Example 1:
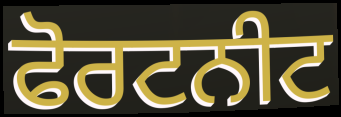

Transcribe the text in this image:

ਫੋਰਟਨੀਟ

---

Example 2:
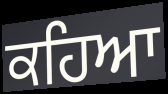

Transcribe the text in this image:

ਕਹਿਆ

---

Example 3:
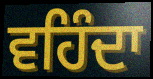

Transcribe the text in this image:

ਵਹਿੰਦਾ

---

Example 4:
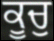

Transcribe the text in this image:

ਕੂਚੁ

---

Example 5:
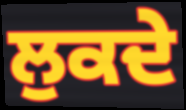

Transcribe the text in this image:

ਲੁਕਦੇ